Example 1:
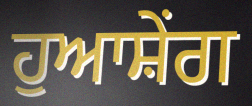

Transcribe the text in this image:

ਹੁਆਸ਼ੇਂਗ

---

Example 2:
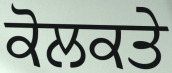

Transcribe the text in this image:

ਕੋਲਕਤੇ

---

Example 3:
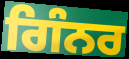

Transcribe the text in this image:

ਗਿੰਨਰ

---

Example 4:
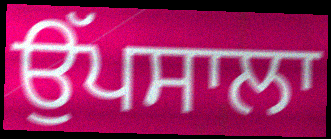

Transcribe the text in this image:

ਉੱਪਸਾਲਾ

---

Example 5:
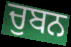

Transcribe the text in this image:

ਚੁਬਨ